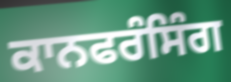
ਕਾਨਫਰੰਸਿੰਗ